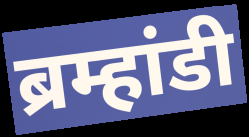
ब्रम्हांडी